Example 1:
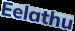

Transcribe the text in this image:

Eelathu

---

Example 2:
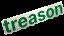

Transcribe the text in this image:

treason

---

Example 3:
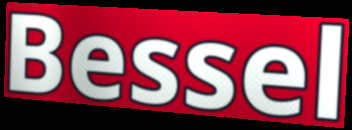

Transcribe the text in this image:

Bessel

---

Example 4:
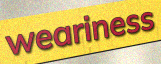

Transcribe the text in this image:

weariness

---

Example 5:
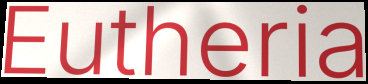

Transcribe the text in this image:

Eutheria